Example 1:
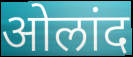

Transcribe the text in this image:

ओलांद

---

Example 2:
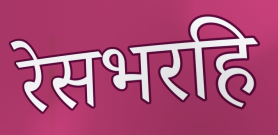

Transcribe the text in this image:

रेसभरहि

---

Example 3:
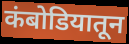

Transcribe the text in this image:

कंबोडियातून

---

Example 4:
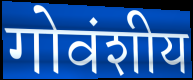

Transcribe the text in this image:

गोवंशीय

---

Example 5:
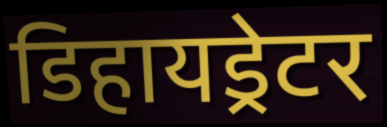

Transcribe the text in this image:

डिहायड्रेटर